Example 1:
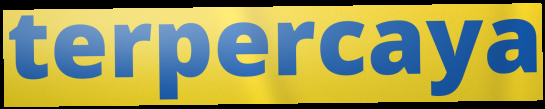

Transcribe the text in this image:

terpercaya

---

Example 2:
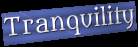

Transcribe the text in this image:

Tranquility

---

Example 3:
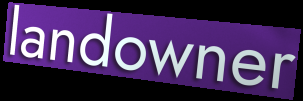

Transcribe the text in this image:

landowner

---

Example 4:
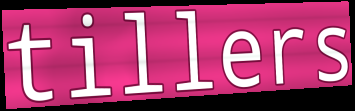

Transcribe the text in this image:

tillers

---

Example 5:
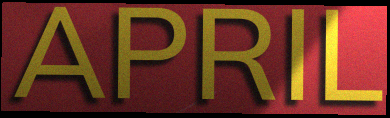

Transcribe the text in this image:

APRIL